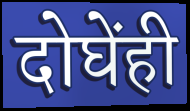
दोघेंही